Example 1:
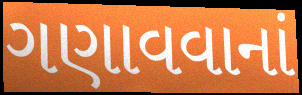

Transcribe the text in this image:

ગણાવવાનાં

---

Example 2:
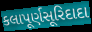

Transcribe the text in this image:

કલાપૂર્ણસૂરિદાદા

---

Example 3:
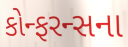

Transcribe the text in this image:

કોન્ફરન્સના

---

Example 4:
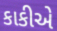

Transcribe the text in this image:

કાકીએ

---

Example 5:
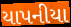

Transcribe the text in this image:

યાપનીયા